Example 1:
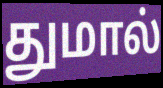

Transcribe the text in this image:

துமால்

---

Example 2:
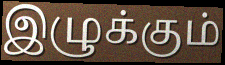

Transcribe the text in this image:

இழுக்கும்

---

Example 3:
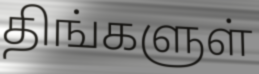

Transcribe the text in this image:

திங்களுள்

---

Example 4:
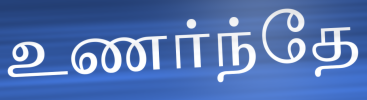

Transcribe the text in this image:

உணர்ந்தே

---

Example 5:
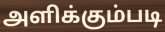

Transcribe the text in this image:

அளிக்கும்படி